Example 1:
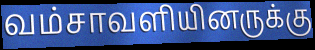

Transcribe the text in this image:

வம்சாவளியினருக்கு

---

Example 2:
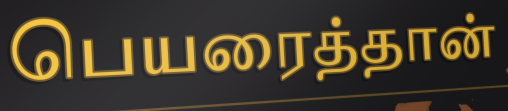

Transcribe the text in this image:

பெயரைத்தான்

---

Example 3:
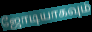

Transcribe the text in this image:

ஜோடியாகவும்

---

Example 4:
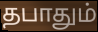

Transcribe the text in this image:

தபாதும்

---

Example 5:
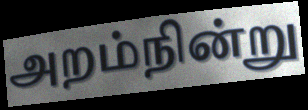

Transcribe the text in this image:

அறம்நின்று